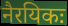
नैरयिकः